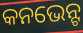
କନଭେନ୍ଟ